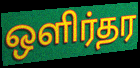
ஒளிர்தர